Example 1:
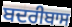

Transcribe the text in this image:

ਬਦਰੀਬਾਸ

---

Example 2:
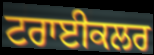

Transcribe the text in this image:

ਟਰਾਈਕਲਰ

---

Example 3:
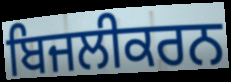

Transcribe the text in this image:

ਬਿਜਲੀਕਰਨ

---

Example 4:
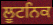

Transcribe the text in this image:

ਲੂਟਨਿਕ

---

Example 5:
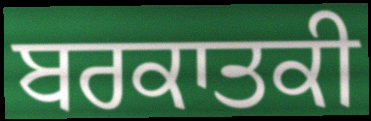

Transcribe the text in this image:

ਬਰਕਾਤਕੀ